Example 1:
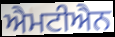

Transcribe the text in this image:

ਐਮਟੀਐਨ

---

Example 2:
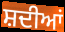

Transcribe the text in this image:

ਸ਼ਦੀਆਂ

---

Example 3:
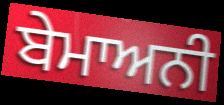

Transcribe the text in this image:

ਬੇਮਾਅਨੀ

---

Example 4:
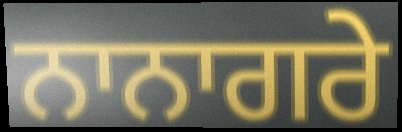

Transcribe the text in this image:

ਨਾਨਾਗਰੇ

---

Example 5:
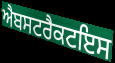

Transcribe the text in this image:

ਐਬਸਟਰੈਕਟਇਸ